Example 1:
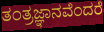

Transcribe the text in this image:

ತಂತ್ರಜ್ಞಾನವೆಂದರೆ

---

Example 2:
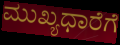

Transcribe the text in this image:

ಮುಖ್ಯಧಾರೆಗೆ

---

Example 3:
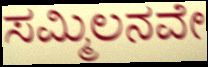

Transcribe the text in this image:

ಸಮ್ಮಿಲನವೇ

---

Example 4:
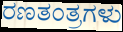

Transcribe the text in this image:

ರಣತಂತ್ರಗಳು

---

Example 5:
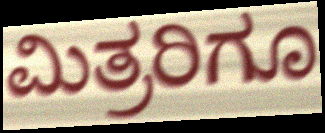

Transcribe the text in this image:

ಮಿತ್ರರಿಗೂ